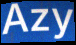
Azy